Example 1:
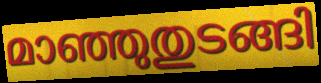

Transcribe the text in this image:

മാഞ്ഞുതുടങ്ങി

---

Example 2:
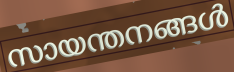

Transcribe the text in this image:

സായന്തനങ്ങൾ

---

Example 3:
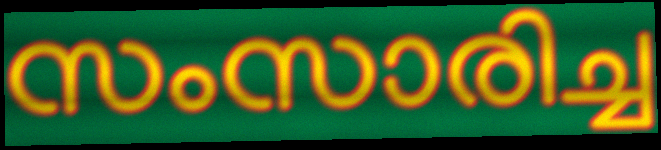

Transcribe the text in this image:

സംസാരിച്ച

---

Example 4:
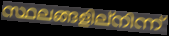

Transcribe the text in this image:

സ്ഥലങ്ങളില്നിന്ന്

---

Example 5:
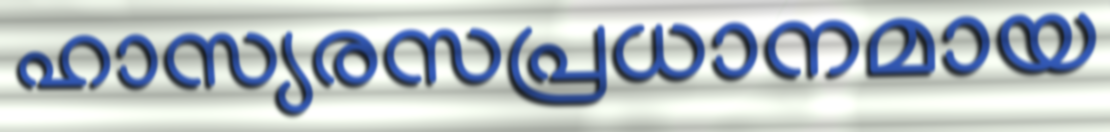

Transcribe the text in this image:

ഹാസ്യരസപ്രധാനമായ